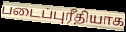
படைப்புரீதியாக